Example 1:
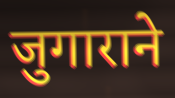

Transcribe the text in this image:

जुगाराने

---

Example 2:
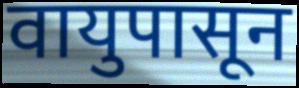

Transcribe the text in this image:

वायुपासून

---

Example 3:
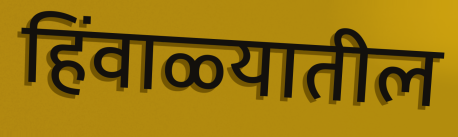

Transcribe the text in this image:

हिंवाळ्यातील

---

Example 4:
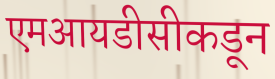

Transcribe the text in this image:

एमआयडीसीकडून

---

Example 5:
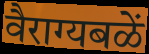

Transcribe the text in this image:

वैराग्यबळें